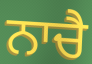
ਨਾਚੈ